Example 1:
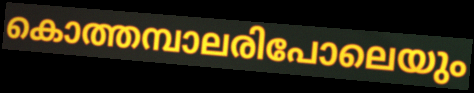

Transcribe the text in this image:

കൊത്തമ്പാലരിപോലെയും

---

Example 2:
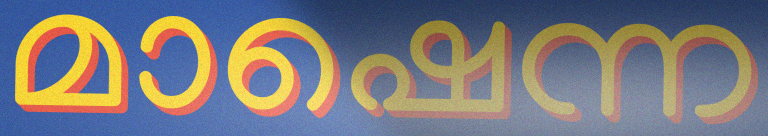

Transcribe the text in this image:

മാഷെന്ന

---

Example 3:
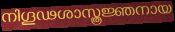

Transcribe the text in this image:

നിഗൂഢശാസ്ത്രജ്ഞനായ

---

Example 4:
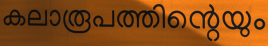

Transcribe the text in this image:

കലാരൂപത്തിന്റെയും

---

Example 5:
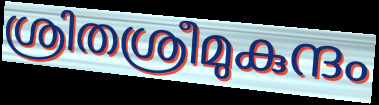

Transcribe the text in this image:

ശ്രിതശ്രീമുകുന്ദം